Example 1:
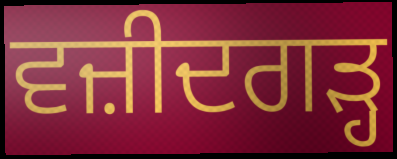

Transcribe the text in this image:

ਵਜ਼ੀਦਗੜ੍ਹ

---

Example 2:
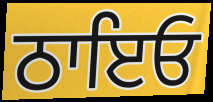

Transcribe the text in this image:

ਠਾਇਓ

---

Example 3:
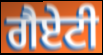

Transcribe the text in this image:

ਗੈਏਟੀ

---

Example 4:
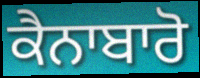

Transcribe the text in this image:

ਕੈਨਾਬਾਰੋ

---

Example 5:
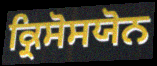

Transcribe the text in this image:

ਕ੍ਰਿਸੋਸਯੋਨ